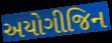
અયોગીજિન